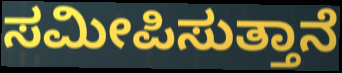
ಸಮೀಪಿಸುತ್ತಾನೆ